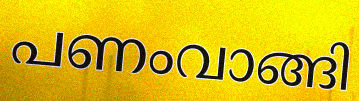
പണംവാങ്ങി